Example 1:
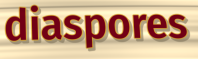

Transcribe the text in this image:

diaspores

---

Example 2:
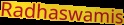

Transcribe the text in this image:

Radhaswamis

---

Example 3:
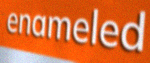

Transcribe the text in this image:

enameled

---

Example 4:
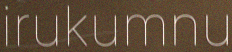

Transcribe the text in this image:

irukumnu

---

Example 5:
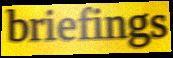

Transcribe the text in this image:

briefings